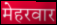
मेहरवार